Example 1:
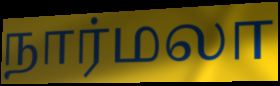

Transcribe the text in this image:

நார்மலா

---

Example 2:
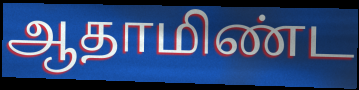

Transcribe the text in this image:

ஆதாமிண்ட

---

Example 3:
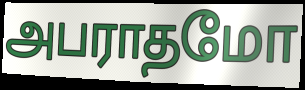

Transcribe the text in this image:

அபராதமோ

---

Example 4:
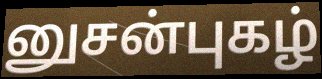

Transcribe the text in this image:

னுசன்புகழ்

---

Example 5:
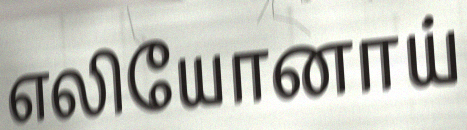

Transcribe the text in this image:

எலியோனாய்